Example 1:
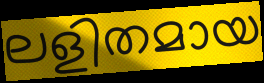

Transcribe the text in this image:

ലളിതമായ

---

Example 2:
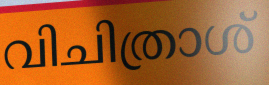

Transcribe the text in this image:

വിചിത്രാശ്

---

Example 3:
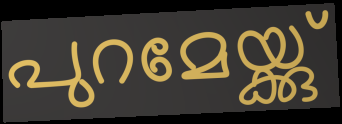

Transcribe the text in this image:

പുറമേയ്ക്കു്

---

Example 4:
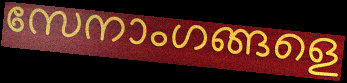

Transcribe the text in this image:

സേനാംഗങ്ങളെ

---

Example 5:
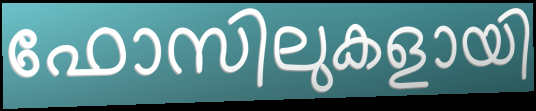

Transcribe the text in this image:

ഫോസിലുകളായി